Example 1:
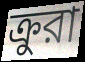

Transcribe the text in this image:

ক্রুরা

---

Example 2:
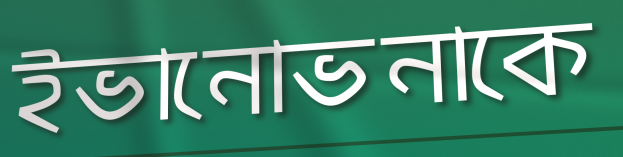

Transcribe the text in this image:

ইভানোভনাকে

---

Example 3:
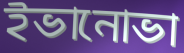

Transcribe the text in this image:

ইভানোভা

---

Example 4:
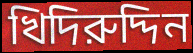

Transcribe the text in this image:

খিদিরুদ্দিন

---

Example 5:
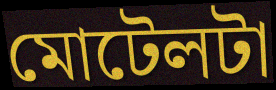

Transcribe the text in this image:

মোটেলটা